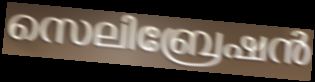
സെലിബ്രേഷൻ